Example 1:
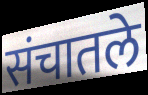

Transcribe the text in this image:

संचातले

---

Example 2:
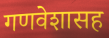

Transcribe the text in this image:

गणवेशासह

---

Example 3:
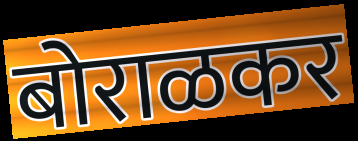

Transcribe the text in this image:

बोराळकर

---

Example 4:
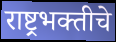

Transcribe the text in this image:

राष्ट्रभक्तीचे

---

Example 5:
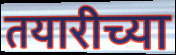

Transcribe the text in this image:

तयारीच्या